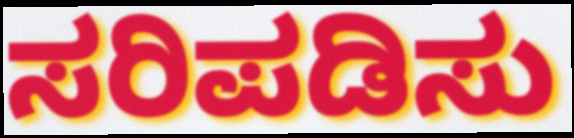
ಸರಿಪಡಿಸು